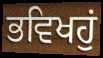
ਭਵਿਖਹੁਂ